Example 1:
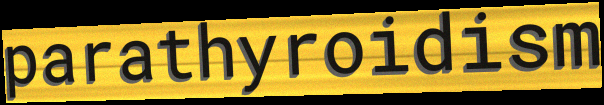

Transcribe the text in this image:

parathyroidism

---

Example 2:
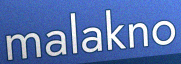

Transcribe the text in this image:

malakno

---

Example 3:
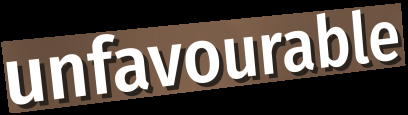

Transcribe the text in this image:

unfavourable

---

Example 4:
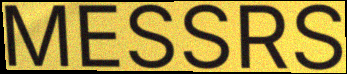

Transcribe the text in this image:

MESSRS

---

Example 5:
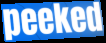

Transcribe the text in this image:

peeked